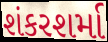
શંકરશર્મા